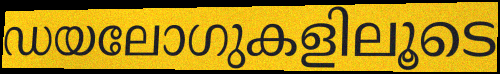
ഡയലോഗുകളിലൂടെ